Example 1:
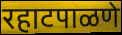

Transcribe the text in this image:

रहाटपाळणे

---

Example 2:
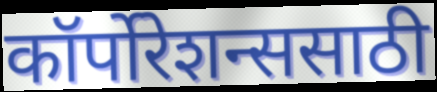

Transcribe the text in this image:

कॉर्पोरेशन्ससाठी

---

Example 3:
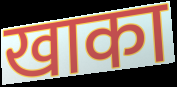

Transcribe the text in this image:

खाका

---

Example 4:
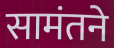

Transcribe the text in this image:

सामंतने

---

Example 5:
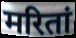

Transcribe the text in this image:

मरितां